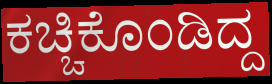
ಕಚ್ಚಿಕೊಂಡಿದ್ದ